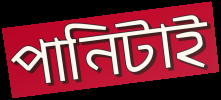
পানিটাই